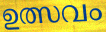
ഉത്സവം